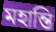
মহান্তি